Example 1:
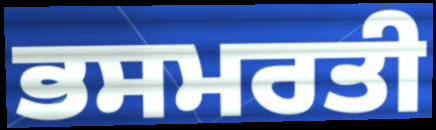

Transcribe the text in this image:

ਭਸਮਰਤੀ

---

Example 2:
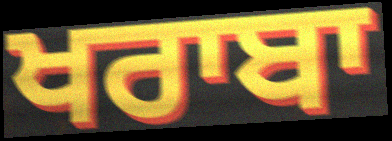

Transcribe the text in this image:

ਖਰਾਬਾ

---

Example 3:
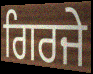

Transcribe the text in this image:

ਗਿਰਜੇ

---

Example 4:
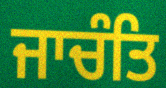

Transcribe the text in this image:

ਜਾਚੰਤਿ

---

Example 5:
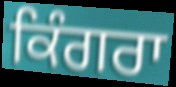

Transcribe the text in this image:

ਕਿੰਗਰਾ